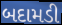
બદામડી